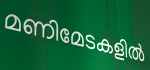
മണിമേടകളിൽ